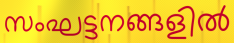
സംഘട്ടനങ്ങളിൽ